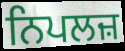
ਨਿਪਲਜ਼